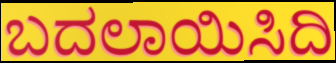
ಬದಲಾಯಿಸಿದಿ